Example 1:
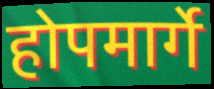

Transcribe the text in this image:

होपमार्गे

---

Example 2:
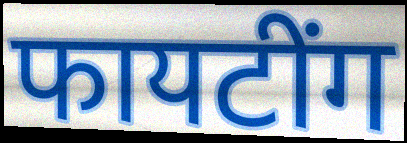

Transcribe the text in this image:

फायटींग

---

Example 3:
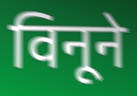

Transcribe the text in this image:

विनूने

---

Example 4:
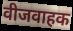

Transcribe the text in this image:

वीजवाहक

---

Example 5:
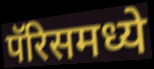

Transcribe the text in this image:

पॅरिसमध्ये